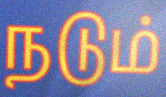
நடும்